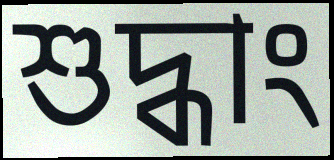
শুদ্ধাং